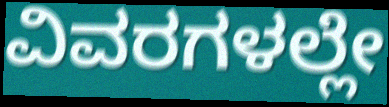
ವಿವರಗಳಲ್ಲೇ